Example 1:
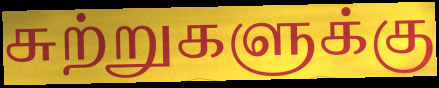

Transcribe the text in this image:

சுற்றுகளுக்கு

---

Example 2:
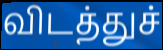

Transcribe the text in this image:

விடத்துச்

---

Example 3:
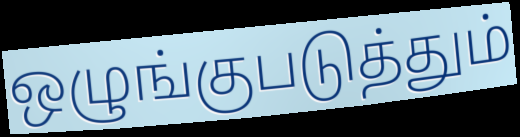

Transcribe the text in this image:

ஒழுங்குபடுத்தும்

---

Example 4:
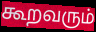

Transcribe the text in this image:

கூறவரும்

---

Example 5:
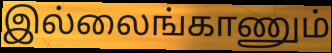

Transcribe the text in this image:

இல்லைங்காணும்